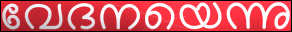
വേദനയെന്നു